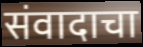
संवादाचा